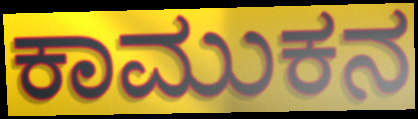
ಕಾಮುಕನ